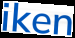
iken